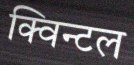
क्विन्टल